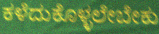
ಕಳೆದುಕೊಳ್ಳಲೇಬೇಕು